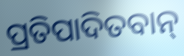
ପ୍ରତିପାଦିତବାନ୍